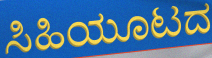
ಸಿಹಿಯೂಟದ